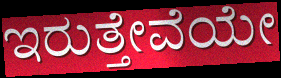
ಇರುತ್ತೇವೆಯೇ